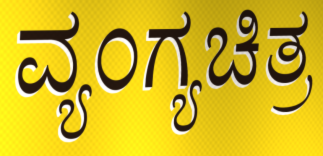
ವ್ಯಂಗ್ಯಚಿತ್ರ